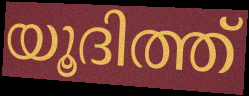
യൂദിത്ത്